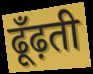
ढूँढ़ती